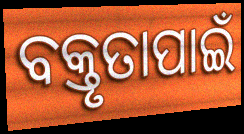
ବକ୍ତୃତାପାଇଁ